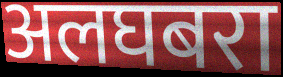
अलघबरा